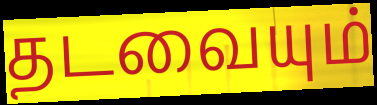
தடவையும்